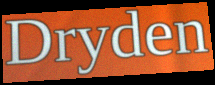
Dryden